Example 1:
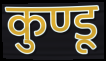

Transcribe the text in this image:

कुण्डू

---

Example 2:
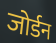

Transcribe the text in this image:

जोर्डन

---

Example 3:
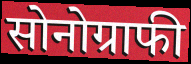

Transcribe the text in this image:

सोनोग्राफी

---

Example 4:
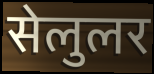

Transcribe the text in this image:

सेलुलर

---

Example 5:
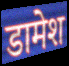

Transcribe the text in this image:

डामेश